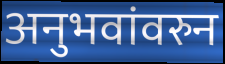
अनुभवांवरुन